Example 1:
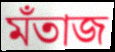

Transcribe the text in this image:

মঁতাজ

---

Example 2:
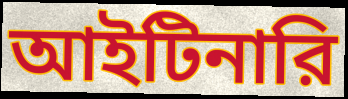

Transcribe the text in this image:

আইটিনারি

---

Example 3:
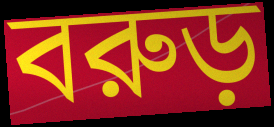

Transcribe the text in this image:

বরুড়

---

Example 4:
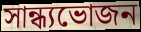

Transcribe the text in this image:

সান্ধ্যভোজন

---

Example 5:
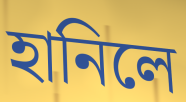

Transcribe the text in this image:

হানিলে